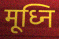
मूध्नि